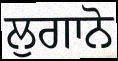
ਲੁਗਾਨੋ